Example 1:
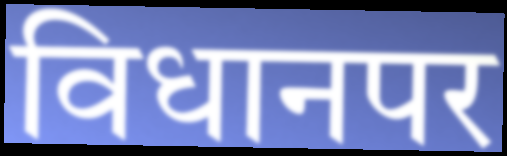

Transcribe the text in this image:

विधानपर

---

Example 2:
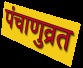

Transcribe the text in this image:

पंचाणुव्रत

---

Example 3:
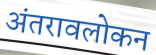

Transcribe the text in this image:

अंतरावलोकन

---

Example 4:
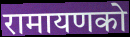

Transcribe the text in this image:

रामायणको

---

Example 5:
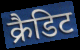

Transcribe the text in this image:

क्रैडिट